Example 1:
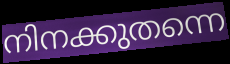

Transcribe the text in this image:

നിനക്കുതന്നെ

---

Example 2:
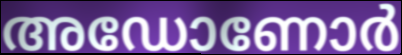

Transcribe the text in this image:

അഡോണോർ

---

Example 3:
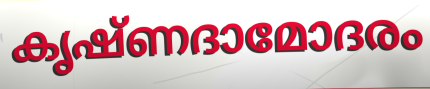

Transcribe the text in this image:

കൃഷ്ണദാമോദരം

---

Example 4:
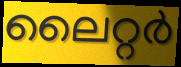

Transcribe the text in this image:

ലൈറ്റർ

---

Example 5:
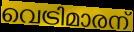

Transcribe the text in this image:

വെട്രിമാരന്